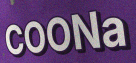
COONa